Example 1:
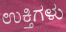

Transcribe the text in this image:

ಉಕ್ತಿಗಳು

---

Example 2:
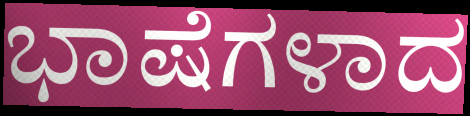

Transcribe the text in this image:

ಭಾಷೆಗಳಾದ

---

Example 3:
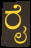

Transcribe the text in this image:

ರೈ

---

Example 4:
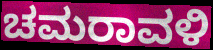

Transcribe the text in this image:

ಚಮರಾವಳಿ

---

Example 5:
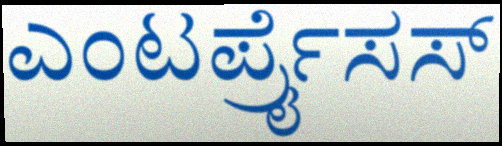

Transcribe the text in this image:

ಎಂಟರ್ಪ್ರೈಸಸ್